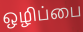
ஒழிப்பை